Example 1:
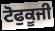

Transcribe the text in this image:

ਟੋਫੁਕੂਜੀ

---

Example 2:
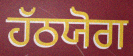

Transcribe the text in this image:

ਹੱਠਯੋਗ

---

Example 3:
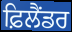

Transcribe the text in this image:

ਫ਼ਿਲੈਂਡਰ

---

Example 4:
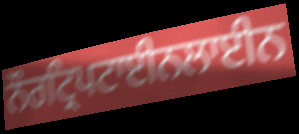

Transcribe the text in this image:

ਨੌਰਟ੍ਰਿਪਟਾਈਨਲਾਈਨ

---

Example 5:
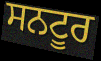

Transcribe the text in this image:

ਸਨਟੂਰ